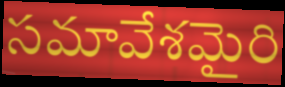
సమావేశమైరి